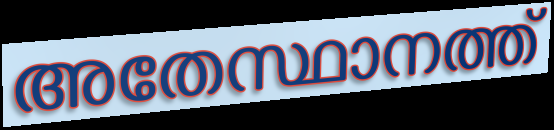
അതേസ്ഥാനത്ത്